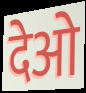
देओ